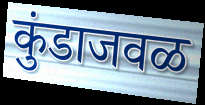
कुंडाजवळ